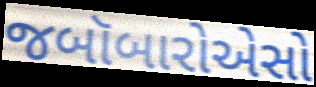
જબૉબારોએસો